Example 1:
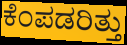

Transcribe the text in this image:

ಕೆಂಪಡರಿತ್ತು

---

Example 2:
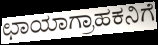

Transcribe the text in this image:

ಛಾಯಾಗ್ರಾಹಕನಿಗೆ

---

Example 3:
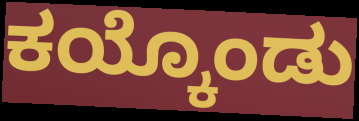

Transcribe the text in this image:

ಕಯ್ಕೊಂಡು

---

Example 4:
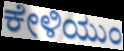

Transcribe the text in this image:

ಕೇಳಿಯುಂ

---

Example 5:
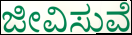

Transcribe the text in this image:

ಜೀವಿಸುವೆ